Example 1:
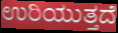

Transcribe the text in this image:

ಉರಿಯುತ್ತದೆ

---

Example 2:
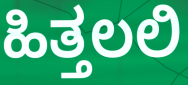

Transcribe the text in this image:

ಹಿತ್ತಲಲಿ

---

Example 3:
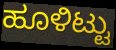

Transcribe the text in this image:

ಹೂಳಿಟ್ಟು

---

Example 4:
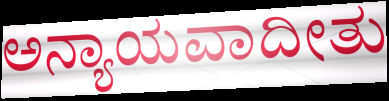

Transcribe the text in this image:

ಅನ್ಯಾಯವಾದೀತು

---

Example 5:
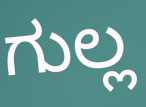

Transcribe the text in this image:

ಗುಲ್ಲ